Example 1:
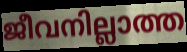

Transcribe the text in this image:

ജീവനില്ലാത്ത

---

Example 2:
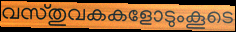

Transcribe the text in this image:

വസ്തുവകകളോടുംകൂടെ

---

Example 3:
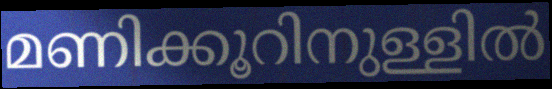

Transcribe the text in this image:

മണിക്കൂറിനുള്ളിൽ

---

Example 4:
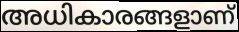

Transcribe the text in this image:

അധികാരങ്ങളാണ്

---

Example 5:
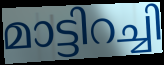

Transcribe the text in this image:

മാട്ടിറച്ചി